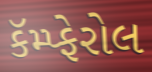
કૅમ્પ્ફેરોલ